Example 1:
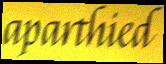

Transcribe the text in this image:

aparthied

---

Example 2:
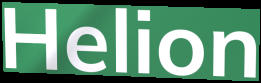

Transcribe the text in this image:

Helion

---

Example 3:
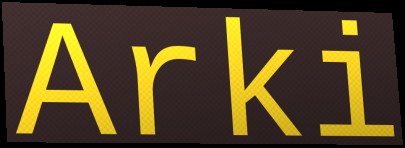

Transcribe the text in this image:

Arki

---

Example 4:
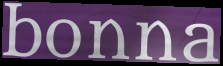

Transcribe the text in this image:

bonna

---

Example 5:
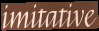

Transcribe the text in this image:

imitative